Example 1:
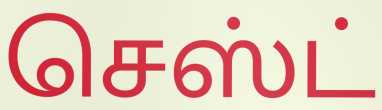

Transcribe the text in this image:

செஸ்ட்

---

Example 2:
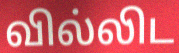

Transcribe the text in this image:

வில்லிட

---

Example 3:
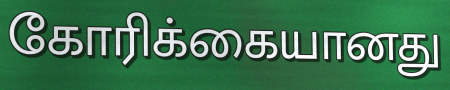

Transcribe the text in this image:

கோரிக்கையானது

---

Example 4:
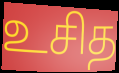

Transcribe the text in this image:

உசித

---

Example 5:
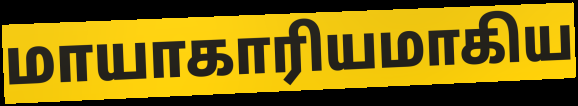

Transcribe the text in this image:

மாயாகாரியமாகிய